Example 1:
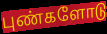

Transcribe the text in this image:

புண்களோடு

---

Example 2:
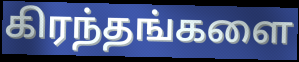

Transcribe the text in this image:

கிரந்தங்களை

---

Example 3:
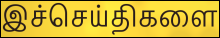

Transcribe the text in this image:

இச்செய்திகளை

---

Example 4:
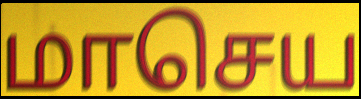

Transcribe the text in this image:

மாசெய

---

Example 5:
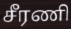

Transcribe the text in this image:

சீரணி